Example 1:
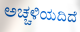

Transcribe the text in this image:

ಅಚ್ಚಳಿಯದಿದೆ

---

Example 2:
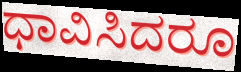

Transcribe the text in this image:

ಧಾವಿಸಿದರೂ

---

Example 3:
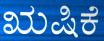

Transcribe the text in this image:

ಋಷಿಕೆ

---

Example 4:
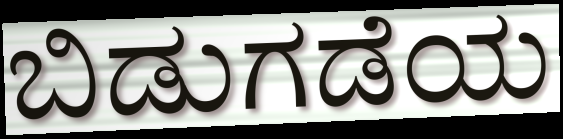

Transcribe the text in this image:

ಬಿಡುಗಡೆಯ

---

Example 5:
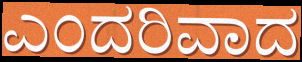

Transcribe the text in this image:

ಎಂದರಿವಾದ